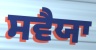
ਸਵੈਯਾ